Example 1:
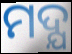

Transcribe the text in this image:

ମଦ୍ଯ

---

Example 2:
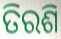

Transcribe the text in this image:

ତିରଶି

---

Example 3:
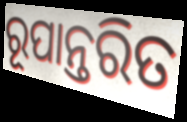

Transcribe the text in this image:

ରୂପାନ୍ତରିତ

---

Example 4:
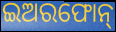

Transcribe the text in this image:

ଇଅରଫୋନ୍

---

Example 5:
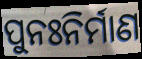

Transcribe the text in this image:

ପୁନଃନିର୍ମାଣ